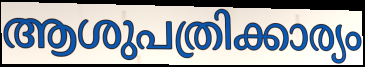
ആശുപത്രിക്കാര്യം